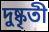
দুষ্কৃতী